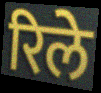
रिले